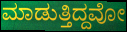
ಮಾಡುತ್ತಿದ್ದವೋ